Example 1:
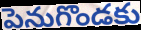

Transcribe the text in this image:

పెనుగొండకు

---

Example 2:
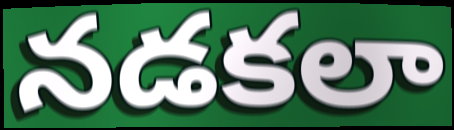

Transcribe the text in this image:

నడకలా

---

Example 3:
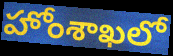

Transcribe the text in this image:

హోంశాఖలో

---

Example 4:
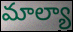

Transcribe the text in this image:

మాల్యా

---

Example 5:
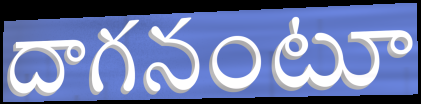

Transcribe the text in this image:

దాగనంటూ